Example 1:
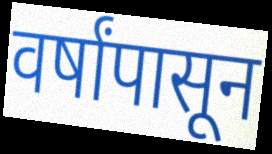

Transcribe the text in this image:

वर्षांपासून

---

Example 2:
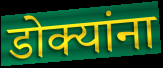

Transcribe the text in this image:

डोक्यांना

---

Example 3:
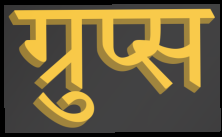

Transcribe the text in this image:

ग्रुप्स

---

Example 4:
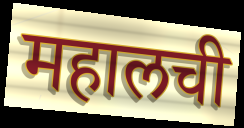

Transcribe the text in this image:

महालची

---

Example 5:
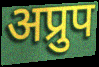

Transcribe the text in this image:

अप्रुप